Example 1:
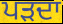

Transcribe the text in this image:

ਪੜਦਾ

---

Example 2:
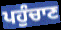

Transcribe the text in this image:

ਪਹੁੰਚਾਣ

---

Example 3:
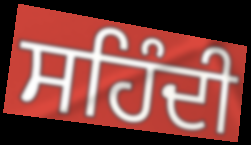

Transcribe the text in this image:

ਸਹਿੰਦੀ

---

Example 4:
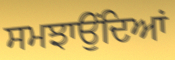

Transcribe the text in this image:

ਸਮਝਾਉਂਦਿਆਂ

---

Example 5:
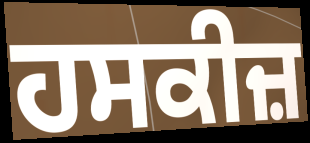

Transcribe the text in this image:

ਹਸਕੀਜ਼